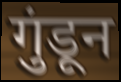
गुंडून